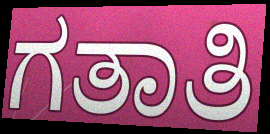
ಗತಾತಿ